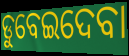
ଡୁବେଇଦେବା